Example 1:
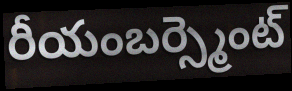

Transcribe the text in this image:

రీయంబర్స్మెంట్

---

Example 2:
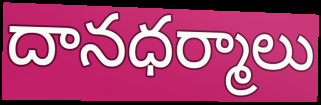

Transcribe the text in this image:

దానధర్మాలు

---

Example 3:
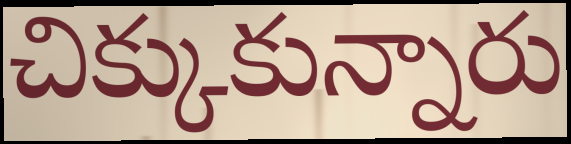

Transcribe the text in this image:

చిక్కుకున్నారు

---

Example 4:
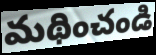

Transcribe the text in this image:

మథించండి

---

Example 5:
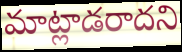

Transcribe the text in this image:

మాట్లాడరాదని